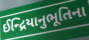
ઈન્દ્રિયાનુભૂતિના